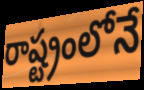
రాష్ట్రంలోనే